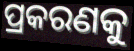
ପ୍ରକରଣକୁ